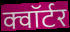
क्‍वॉर्टर